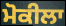
ਮੋਕੀਲਾ